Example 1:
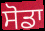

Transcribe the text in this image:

ਸੋਡਾ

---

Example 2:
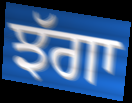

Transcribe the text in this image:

ਝੱਗਾ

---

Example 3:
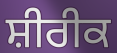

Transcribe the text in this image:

ਸ਼ੀਰੀਕ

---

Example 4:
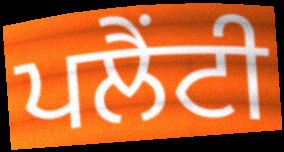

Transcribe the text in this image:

ਪਲੈਂਟੀ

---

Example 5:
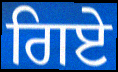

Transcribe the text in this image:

ਗਿਏ